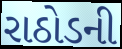
રાઠોડની